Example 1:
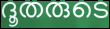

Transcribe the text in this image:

ദൂതരുടെ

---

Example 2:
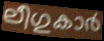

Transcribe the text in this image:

ലീഗുകാർ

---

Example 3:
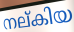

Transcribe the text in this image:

നല്കിയ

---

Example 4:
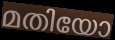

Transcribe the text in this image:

മതിയോ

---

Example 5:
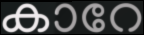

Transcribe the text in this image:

കാറേ